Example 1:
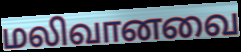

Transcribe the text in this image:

மலிவானவை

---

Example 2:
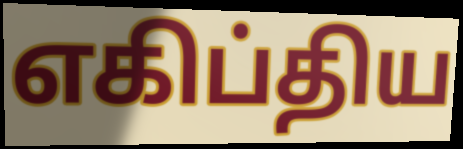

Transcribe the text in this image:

எகிப்திய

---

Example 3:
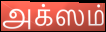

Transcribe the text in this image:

அக்ஸம்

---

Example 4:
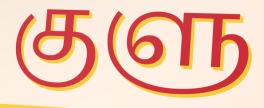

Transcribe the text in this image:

குளு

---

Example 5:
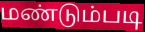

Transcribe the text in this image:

மண்டும்படி